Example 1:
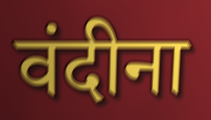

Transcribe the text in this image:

वंदीना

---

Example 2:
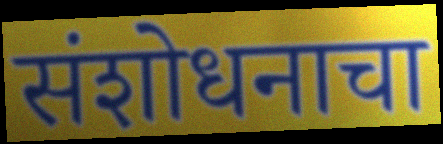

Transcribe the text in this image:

संशोधनाचा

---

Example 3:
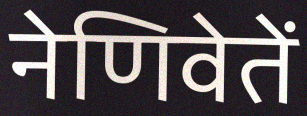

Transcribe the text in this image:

नेणिवेतें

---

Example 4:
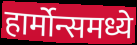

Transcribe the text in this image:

हार्मोन्समध्ये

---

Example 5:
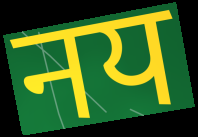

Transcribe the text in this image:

नय